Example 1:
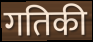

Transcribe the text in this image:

गतिकी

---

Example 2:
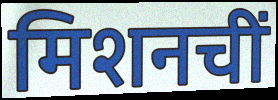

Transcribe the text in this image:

मिशनचीं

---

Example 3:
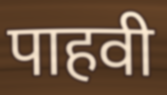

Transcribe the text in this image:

पाहवी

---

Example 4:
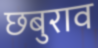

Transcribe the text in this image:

छबुराव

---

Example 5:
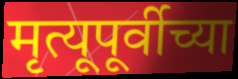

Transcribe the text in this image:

मृत्यूपूर्वीच्या